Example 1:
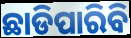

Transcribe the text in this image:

ଛାଡିପାରିବି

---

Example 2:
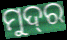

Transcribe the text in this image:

ମୁଦ୍‌ର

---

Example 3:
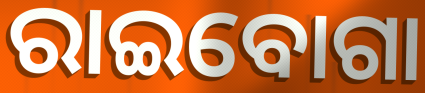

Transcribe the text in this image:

ରାଇବୋଗା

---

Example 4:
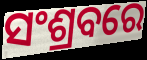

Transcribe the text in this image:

ସଂଶ୍ରବରେ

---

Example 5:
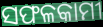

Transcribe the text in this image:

ସଫଳକାମୀ